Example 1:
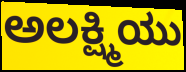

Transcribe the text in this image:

ಅಲಕ್ಷ್ಮಿಯು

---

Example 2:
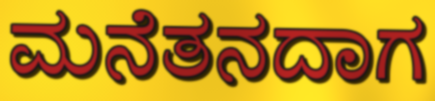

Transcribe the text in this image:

ಮನೆತನದಾಗ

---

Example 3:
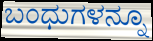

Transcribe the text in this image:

ಬಂಧುಗಳನ್ನೂ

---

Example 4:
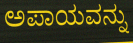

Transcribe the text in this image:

ಅಪಾಯವನ್ನು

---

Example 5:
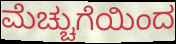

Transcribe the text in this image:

ಮೆಚ್ಚುಗೆಯಿಂದ